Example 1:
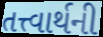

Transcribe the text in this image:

તત્ત્વાર્થની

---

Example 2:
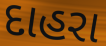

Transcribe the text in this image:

દાહરા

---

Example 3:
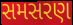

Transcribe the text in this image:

સમસરણ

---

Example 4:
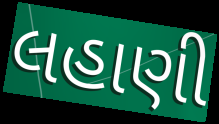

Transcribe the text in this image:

લહાણી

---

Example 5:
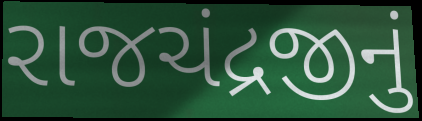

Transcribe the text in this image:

રાજચંદ્રજીનું